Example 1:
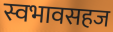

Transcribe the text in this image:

स्वभावसहज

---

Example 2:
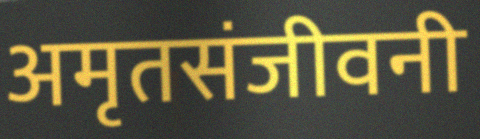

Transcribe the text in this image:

अमृतसंजीवनी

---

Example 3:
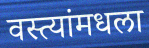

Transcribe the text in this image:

वस्त्यांमधला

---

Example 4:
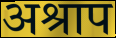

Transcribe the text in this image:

अश्राप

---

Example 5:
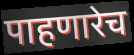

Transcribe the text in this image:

पाहणारेच